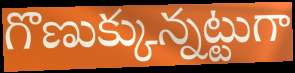
గొణుక్కున్నట్టుగా